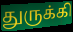
துருக்கி